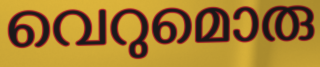
വെറുമൊരു